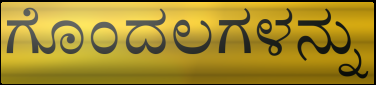
ಗೊಂದಲಗಳನ್ನು